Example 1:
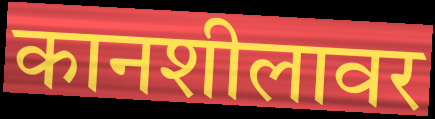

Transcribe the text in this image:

कानशीलावर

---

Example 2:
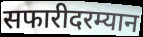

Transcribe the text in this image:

सफारीदरम्यान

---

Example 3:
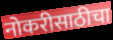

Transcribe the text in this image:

नोकरीसाठीचा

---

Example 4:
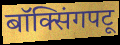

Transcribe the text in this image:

बॉक्सिंगपटू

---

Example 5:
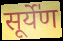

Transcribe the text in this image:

सूर्ये॑ण